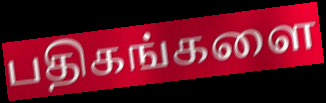
பதிகங்களை